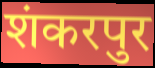
शंकरपुर